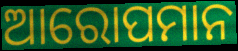
ଆରୋପମାନ